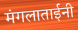
मंगलाताईनी